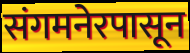
संगमनेरपासून